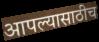
आपल्यासाठीच